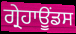
ਗ੍ਰੇਹਾਊਂਡਸ